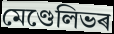
মেণ্ডেলিভৰ